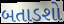
બતાડશો